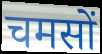
चमसों